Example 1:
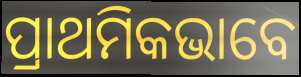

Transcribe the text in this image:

ପ୍ରାଥମିକଭାବେ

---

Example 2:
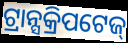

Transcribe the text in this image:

ଟ୍ରାନ୍ସକ୍ରିପଟେଜ୍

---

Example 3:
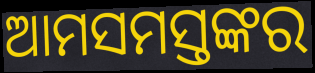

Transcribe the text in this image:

ଆମସମସ୍ତଙ୍କର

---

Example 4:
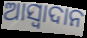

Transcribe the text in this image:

ଆସ୍ୱାଦାନ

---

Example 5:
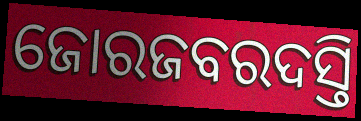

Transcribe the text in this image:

ଜୋରଜବରଦସ୍ତି